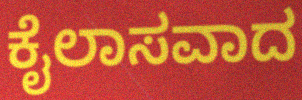
ಕೈಲಾಸವಾದ